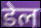
डेल